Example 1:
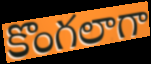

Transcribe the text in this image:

కొంగలాగా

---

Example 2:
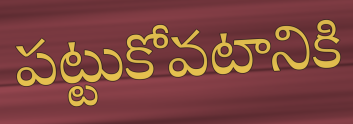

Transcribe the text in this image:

పట్టుకోవటానికి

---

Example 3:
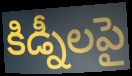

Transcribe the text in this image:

కిడ్నీలపై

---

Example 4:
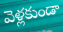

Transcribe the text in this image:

వెళ్లకుండా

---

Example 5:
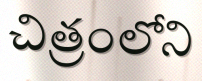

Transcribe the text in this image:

చిత్రంలోని